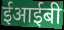
ईआईबी